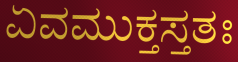
ಏವಮುಕ್ತಸ್ತತಃ